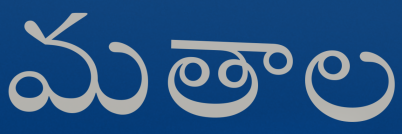
మతాల